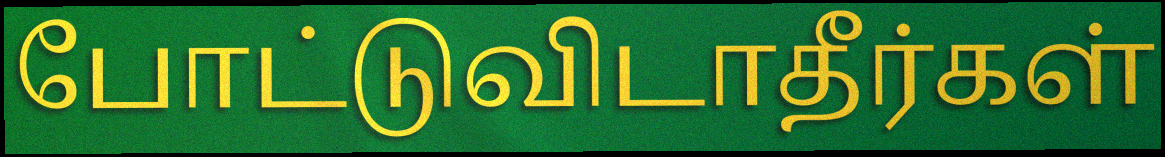
போட்டுவிடாதீர்கள்